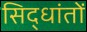
सिद्धांतों